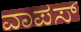
ವಾಪಸ್